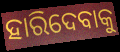
ହାରିଦେବାକୁ